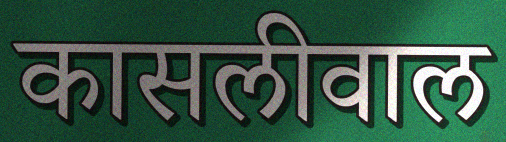
कासलीवाल